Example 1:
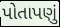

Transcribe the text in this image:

પોતાપણું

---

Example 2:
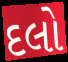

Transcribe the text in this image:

દલો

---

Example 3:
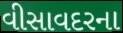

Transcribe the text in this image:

વીસાવદરના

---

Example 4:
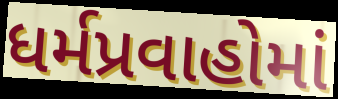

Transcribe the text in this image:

ધર્મપ્રવાહોમાં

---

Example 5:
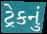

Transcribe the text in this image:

ટ્રેકનું